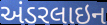
અંડરલાઇન